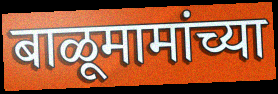
बाळूमामांच्या